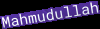
Mahmudullah